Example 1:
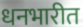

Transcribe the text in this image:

धनभारीत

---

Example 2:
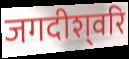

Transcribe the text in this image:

जगदीश्वरि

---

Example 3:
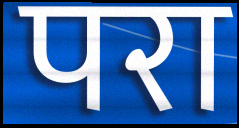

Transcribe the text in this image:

परा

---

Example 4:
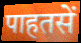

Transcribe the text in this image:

पाहतसें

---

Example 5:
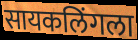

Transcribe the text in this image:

सायकलिंगला